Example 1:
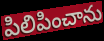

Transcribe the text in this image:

పిలిపించాను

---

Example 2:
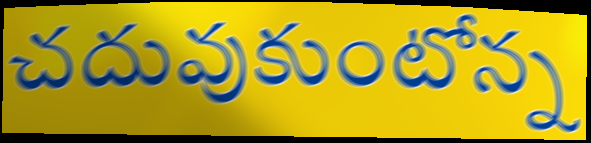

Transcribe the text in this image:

చదువుకుంటోన్న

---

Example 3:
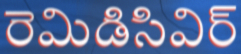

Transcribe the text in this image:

రెమిడిసివిర్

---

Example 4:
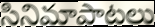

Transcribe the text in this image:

సినిమాపాటలు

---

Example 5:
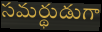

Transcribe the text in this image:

సమర్థుడుగా